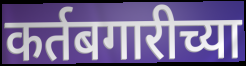
कर्तबगारीच्या